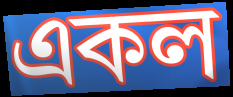
একল